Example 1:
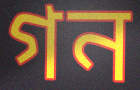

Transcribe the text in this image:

গন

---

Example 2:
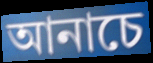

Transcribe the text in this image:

আনাচে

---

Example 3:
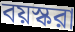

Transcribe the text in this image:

বয়স্করা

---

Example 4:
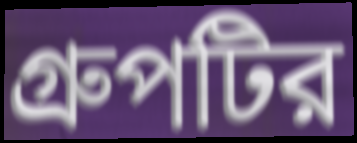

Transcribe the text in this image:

গ্রুপটির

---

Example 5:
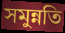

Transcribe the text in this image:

সমুন্নতি